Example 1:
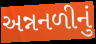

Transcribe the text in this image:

અન્નનળીનું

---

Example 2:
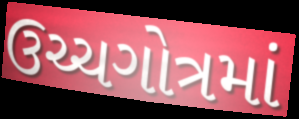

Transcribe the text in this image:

ઉચ્ચગોત્રમાં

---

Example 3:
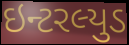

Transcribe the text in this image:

ઇન્ટરલ્યુડ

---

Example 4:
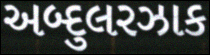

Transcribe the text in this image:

અબ્દુલરઝાક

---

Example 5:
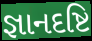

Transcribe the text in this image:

જ્ઞાનદષ્ટિ